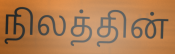
நிலத்தின்